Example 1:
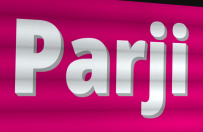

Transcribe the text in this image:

Parji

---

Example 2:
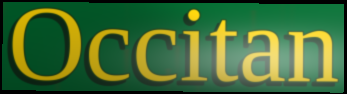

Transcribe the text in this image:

Occitan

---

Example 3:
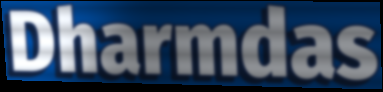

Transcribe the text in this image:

Dharmdas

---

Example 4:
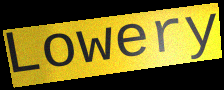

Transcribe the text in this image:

Lowery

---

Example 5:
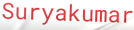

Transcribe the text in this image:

Suryakumar